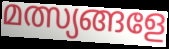
മത്സ്യങ്ങളേ